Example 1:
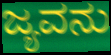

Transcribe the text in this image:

ಜ್ಯವನು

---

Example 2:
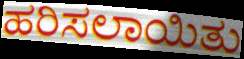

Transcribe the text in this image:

ಹರಿಸಲಾಯಿತು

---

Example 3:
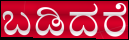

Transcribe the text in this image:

ಬಡಿದರೆ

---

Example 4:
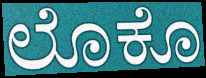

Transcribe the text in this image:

ಲೊಕೊ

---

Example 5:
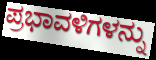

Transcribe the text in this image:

ಪ್ರಭಾವಳಿಗಳನ್ನು